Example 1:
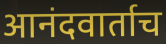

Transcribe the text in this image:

आनंदवार्ताच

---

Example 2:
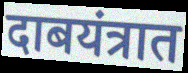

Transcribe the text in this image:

दाबयंत्रात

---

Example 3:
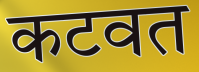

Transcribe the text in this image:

कटवत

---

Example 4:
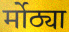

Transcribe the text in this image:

र्मोठ्या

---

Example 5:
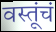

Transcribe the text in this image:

वस्तूंचं